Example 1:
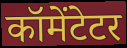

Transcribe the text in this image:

कॉमेंटेटर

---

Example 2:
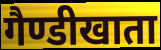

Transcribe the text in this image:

गैण्डीखाता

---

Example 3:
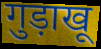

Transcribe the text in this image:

गुड़ाखू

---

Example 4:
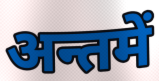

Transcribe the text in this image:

अन्तमें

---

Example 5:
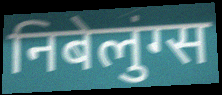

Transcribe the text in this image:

निबेलुंग्स